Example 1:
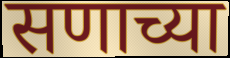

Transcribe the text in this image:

सणाच्या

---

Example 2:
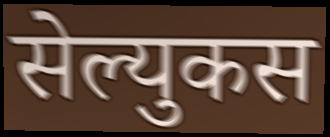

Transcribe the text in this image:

सेल्युकस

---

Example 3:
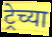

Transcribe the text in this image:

ट्रेच्या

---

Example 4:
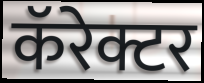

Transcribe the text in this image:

कॅरेक्टर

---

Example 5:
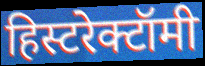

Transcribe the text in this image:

हिस्टरेक्टॉमी